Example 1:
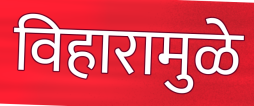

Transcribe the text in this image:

विहारामुळे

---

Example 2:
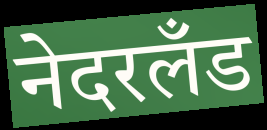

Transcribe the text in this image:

नेदरलँड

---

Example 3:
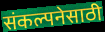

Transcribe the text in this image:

संकल्पनेसाठी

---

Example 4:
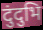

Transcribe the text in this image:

दुंदुभि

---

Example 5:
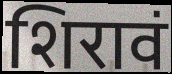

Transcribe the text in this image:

शिरावं